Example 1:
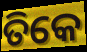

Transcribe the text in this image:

ତିକେ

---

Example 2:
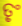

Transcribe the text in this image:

ତୃଂ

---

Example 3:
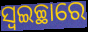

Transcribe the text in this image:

ସ୍ୱଇଚ୍ଛାରେ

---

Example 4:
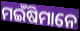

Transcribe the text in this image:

ମଇଁଷିମାନେ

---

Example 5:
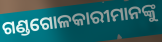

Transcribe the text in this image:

ଗଣ୍ଡଗୋଳକାରୀମାନଙ୍କୁ